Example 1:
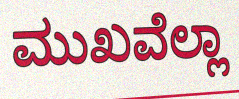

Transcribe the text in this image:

ಮುಖವೆಲ್ಲಾ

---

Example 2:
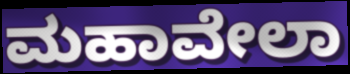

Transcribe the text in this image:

ಮಹಾವೇಲಾ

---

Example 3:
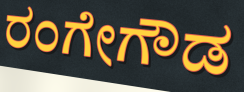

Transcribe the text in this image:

ರಂಗೇಗೌಡ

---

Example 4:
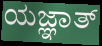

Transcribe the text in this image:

ಯಜ್ಞಾತ್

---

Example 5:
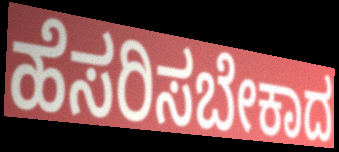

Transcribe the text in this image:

ಹೆಸರಿಸಬೇಕಾದ